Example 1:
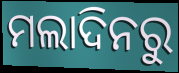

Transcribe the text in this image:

ମଲାଦିନରୁ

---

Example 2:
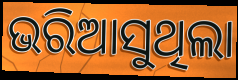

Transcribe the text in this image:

ଭରିଆସୁଥିଲା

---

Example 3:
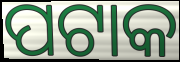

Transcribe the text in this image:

ପଟାକ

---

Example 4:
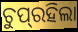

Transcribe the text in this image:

ଚୁପ୍‌ରହିଲା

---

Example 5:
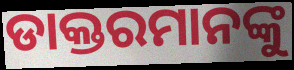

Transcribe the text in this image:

ଡାକ୍ତରମାନଙ୍କୁ